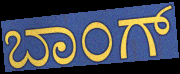
ಬಾಂಗ್